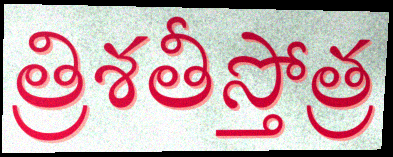
త్రిశతీస్తోత్ర